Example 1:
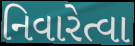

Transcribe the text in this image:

નિવારેત્વા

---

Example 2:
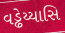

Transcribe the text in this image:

વડ્ઢેય્યાસિ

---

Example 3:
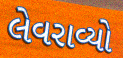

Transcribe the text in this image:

લેવરાવ્યો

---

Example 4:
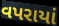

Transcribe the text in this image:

વપરાયાં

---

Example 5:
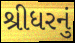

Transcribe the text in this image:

શ્રીધરનું